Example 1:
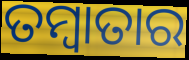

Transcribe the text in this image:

ତମ୍ବାତାର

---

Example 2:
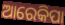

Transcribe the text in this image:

ଆରେକିପା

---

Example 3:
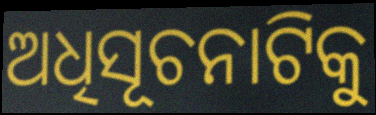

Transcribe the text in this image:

ଅଧିସୂଚନାଟିକୁ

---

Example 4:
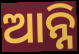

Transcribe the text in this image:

ଆନ୍ନି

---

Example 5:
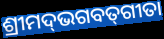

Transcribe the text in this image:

ଶ୍ରୀମଦ୍‌ଭଗବତ୍‌ଗୀତା